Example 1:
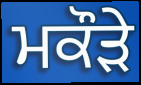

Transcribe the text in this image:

ਮਕੌੜੇ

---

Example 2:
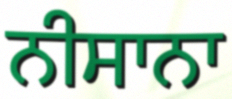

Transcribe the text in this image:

ਨੀਸਾਨਾ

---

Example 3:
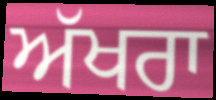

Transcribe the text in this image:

ਅੱਖਰਾ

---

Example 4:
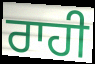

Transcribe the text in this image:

ਰਾਹੀ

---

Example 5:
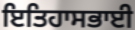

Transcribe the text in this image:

ਇਤਿਹਾਸਭਾਈ